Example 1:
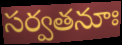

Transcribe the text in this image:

సర్వతనూః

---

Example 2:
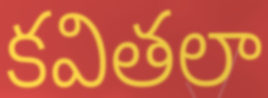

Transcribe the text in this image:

కవితలా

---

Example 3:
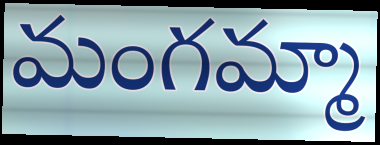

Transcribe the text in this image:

మంగమ్మా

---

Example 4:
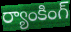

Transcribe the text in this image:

ర్యాంకింగ్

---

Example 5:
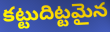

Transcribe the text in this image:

కట్టుదిట్టమైన